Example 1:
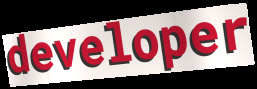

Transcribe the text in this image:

developer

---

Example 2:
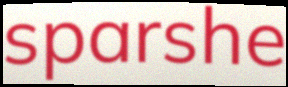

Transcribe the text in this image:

sparshe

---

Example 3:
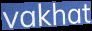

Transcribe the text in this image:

vakhat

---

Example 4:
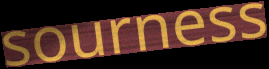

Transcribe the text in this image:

sourness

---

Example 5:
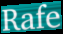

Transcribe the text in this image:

Rafe